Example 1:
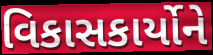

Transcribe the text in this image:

વિકાસકાર્યોને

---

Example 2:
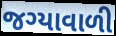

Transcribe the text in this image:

જગ્યાવાળી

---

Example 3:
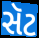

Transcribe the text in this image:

સૅટ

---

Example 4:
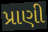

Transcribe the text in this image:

પ્રાણી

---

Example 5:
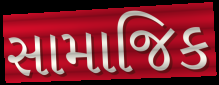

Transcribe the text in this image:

સામાજિક